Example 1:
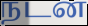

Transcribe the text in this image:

நடன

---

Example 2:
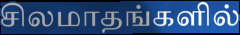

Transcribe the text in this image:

சிலமாதங்களில்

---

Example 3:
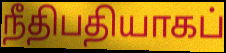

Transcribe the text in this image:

நீதிபதியாகப்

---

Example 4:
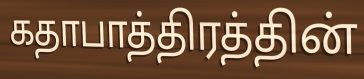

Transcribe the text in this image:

கதாபாத்திரத்தின்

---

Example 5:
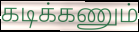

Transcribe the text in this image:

கடிக்கணும்